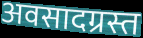
अवसादग्रस्त